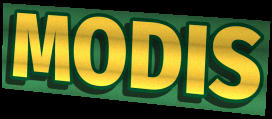
MODIS